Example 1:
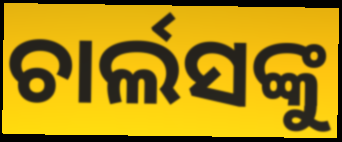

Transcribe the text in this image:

ଚାର୍ଲସଙ୍କୁ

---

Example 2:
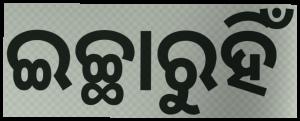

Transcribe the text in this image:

ଇଚ୍ଛାରୁହିଁ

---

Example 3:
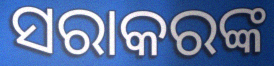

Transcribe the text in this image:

ସରାକରଙ୍କ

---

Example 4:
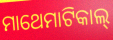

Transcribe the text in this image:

ମାଥେମାଟିକାଲ୍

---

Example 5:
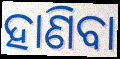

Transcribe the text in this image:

ହାଣିବା